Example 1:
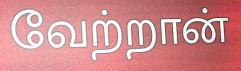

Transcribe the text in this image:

வேற்றான்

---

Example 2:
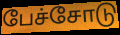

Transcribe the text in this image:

பேச்சோடு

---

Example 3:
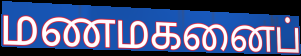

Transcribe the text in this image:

மணமகனைப்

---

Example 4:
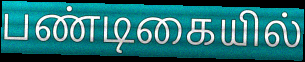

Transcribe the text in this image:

பண்டிகையில்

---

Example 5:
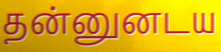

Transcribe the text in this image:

தன்னுனடய